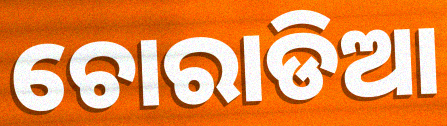
ଚୋରାଡିଆ